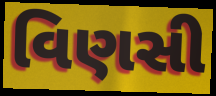
વિણસી